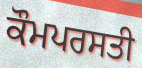
ਕੌਮਪਰਸਤੀ